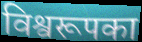
विश्वरूपका